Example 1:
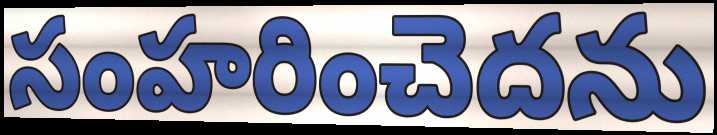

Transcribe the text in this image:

సంహరించెదను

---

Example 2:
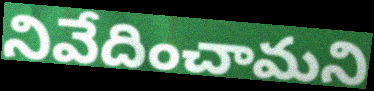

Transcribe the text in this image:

నివేదించామని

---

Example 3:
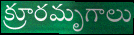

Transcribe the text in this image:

క్రూరమృగాలు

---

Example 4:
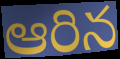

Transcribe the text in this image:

ఆరిన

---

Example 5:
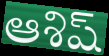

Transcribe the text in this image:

ఆశిష్